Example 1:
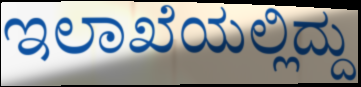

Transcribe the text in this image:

ಇಲಾಖೆಯಲ್ಲಿದ್ದು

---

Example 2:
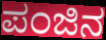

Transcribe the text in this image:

ಪಂಜಿನ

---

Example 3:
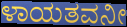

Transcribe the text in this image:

ಳಾಯತವನೀ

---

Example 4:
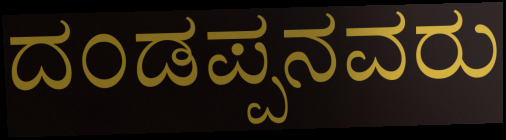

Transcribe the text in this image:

ದಂಡಪ್ಪನವರು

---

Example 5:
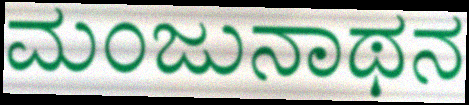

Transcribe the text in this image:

ಮಂಜುನಾಥನ